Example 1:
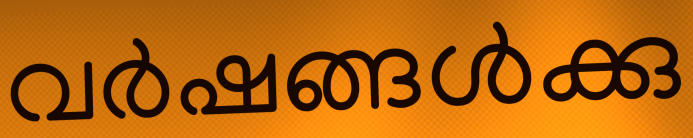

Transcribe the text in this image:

വർഷങ്ങൾക്കു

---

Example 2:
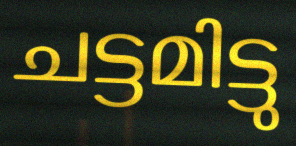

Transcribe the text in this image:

ചട്ടമിട്ടു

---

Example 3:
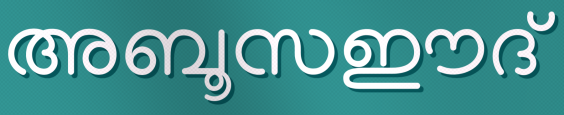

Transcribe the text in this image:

അബൂസഈദ്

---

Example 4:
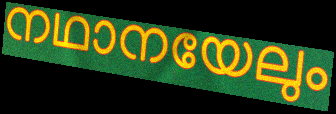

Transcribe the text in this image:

നഥാനയേലും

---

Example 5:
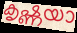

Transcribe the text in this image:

കൃഷ്ണയാ